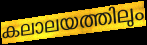
കലാലയത്തിലും